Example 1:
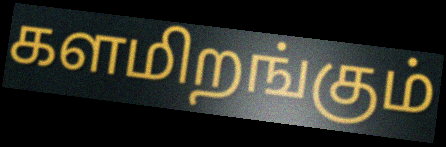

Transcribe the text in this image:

களமிறங்கும்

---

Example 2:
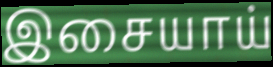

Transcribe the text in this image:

இசையாய்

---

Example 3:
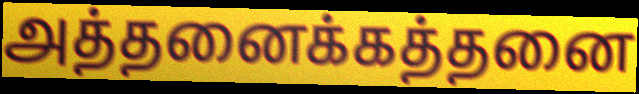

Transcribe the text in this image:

அத்தனைக்கத்தனை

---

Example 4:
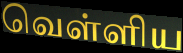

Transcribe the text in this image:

வெள்ளிய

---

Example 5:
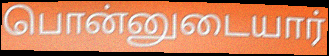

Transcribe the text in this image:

பொன்னுடையார்